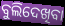
ବୁଲିଦେଖିବା